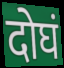
दोघं